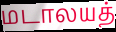
மடாலயத்